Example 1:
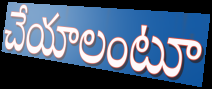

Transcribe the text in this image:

చేయాలంటూ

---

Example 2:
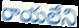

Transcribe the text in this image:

రాయలేని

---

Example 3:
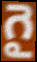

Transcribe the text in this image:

గై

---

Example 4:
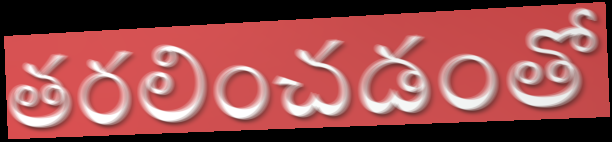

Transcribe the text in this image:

తరలించడంతో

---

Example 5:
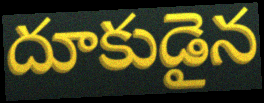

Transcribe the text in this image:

దూకుడైన